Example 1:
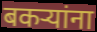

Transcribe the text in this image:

बकर्‍यांना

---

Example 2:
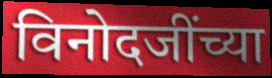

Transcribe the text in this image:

विनोदजींच्या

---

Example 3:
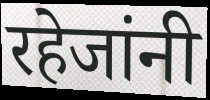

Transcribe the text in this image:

रहेजांनी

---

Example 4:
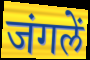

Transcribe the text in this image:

जंगलें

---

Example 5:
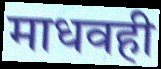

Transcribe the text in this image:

माधवही